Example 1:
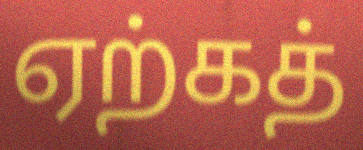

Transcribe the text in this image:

ஏற்கத்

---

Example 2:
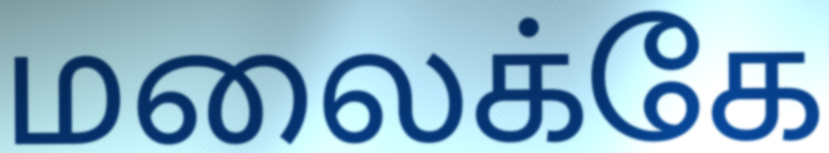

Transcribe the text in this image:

மலைக்கே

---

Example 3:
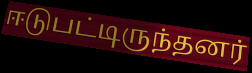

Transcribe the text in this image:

ஈடுபட்டிருந்தனர்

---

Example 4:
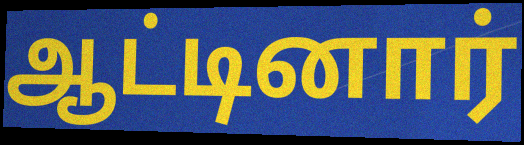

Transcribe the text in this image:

ஆட்டினார்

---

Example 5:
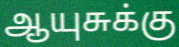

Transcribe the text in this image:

ஆயுசுக்கு